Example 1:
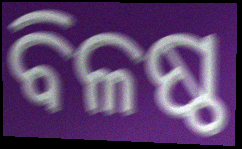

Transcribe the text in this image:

ବିଳଷ୍ଠ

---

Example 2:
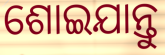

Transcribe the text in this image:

ଶୋଇଯାନ୍ତୁ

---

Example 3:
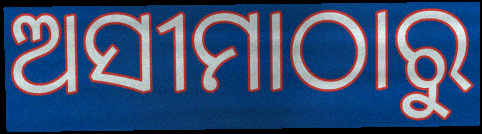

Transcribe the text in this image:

ଅସୀମାଠାରୁ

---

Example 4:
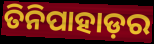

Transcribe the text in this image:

ତିନିପାହାଡ଼ର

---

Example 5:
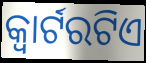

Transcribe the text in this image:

କ୍ୱାର୍ଟରଟିଏ